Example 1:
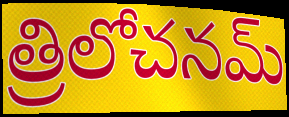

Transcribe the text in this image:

త్రిలోచనమ్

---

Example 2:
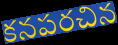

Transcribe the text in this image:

కనపరచిన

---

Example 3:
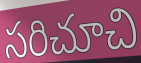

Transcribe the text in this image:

సరిచూచి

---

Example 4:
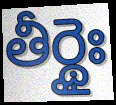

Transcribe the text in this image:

తీర్థైః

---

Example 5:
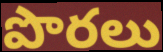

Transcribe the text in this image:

పొరలు